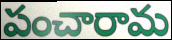
పంచారామ